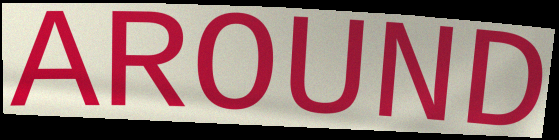
AROUND